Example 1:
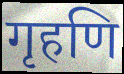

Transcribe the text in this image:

गृहणि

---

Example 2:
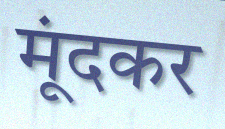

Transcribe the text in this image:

मूंदकर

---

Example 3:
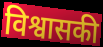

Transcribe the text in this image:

विश्वासकी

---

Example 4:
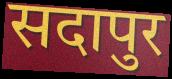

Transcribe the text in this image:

सदापुर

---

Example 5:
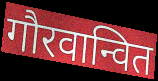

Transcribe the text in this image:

गौरवान्वित